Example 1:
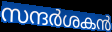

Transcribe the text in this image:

സന്ദർശകൻ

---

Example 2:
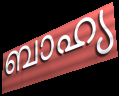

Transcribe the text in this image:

ബാഹ്യ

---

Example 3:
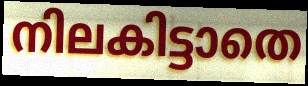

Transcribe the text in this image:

നിലകിട്ടാതെ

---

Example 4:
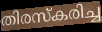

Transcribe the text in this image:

തിരസ്കരിച്ച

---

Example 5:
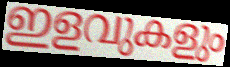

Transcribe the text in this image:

ഇളവുകളും